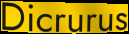
Dicrurus